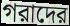
গরাদের